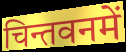
चिन्तवनमें